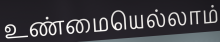
உண்மையெல்லாம்